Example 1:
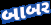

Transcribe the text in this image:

બાબર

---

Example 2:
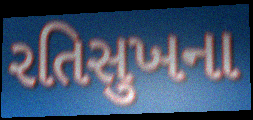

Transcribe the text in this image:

રતિસુખના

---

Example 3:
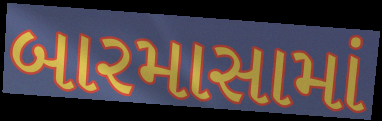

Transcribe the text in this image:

બારમાસામાં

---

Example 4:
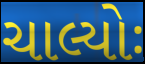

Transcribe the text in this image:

ચાલ્યોઃ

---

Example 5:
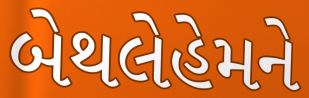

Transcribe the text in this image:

બેથલેહેમને